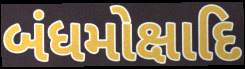
બંધમોક્ષાદિ